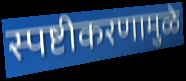
स्पष्टीकरणामुळे